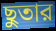
ছুতার